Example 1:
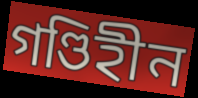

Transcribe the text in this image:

গণ্ডিহীন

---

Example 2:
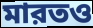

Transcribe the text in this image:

মারতও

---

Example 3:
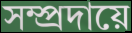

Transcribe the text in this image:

সম্প্রদায়ে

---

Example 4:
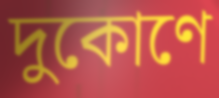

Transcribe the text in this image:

দুকোণে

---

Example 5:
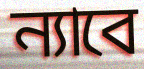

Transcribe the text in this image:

ন্যাবে